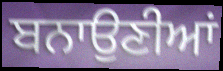
ਬਨਾਉਣੀਆਂ